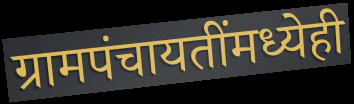
ग्रामपंचायतींमध्येही